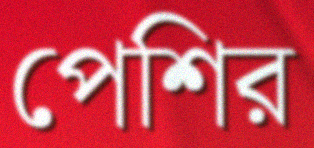
পেশির